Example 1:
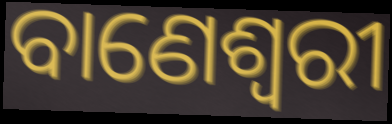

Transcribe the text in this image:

ବାଣେଶ୍ୱରୀ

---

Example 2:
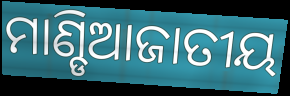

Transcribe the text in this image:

ମାଣ୍ଡିଆଜାତୀୟ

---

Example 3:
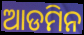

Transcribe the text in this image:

ଆଡମିନ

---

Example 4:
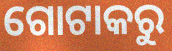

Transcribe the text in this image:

ଗୋଟାକରୁ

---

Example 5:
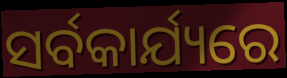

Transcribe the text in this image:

ସର୍ବକାର୍ଯ୍ୟରେ